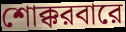
শোক্করবারে